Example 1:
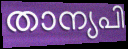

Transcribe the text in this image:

താന്യപി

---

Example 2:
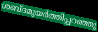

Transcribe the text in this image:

ശബ്ദമുയർത്തിപ്പറഞ്ഞു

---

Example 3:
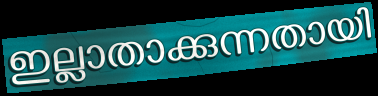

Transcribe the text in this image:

ഇല്ലാതാക്കുന്നതായി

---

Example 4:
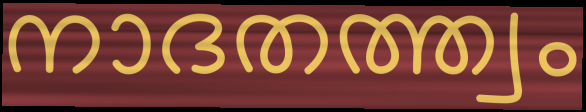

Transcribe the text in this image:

നാദതത്ത്വം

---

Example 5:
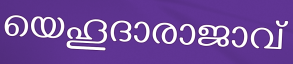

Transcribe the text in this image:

യെഹൂദാരാജാവ്